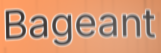
Bageant